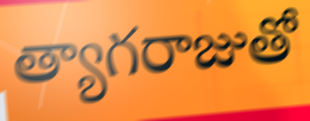
త్యాగరాజుతో